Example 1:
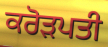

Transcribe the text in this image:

ਕਰੋੜਪਤੀ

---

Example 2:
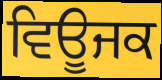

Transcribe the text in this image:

ਵਿਊਜਕ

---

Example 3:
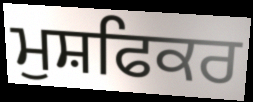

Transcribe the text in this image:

ਮੁਸ਼ਫਿਕਰ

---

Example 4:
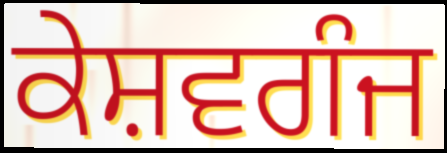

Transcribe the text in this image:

ਕੇਸ਼ਵਗੰਜ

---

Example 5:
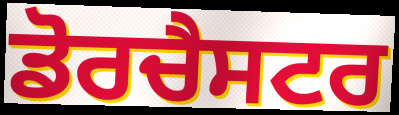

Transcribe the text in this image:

ਡੋਰਚੈਸਟਰ